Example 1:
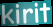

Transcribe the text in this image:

kirit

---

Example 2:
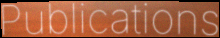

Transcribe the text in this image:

Publications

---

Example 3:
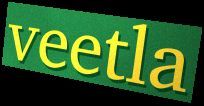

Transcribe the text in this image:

veetla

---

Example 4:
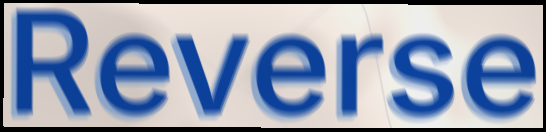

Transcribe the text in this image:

Reverse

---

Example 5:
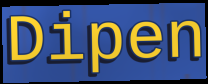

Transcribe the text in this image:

Dipen